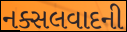
નક્સલવાદની